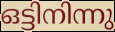
ഒട്ടിനിന്നു